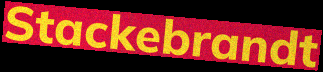
Stackebrandt